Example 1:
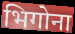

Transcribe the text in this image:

भिगोना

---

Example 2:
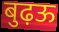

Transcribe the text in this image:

बुढ़ऊ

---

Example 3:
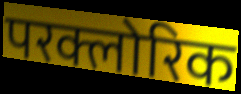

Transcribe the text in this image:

परक्लोरिक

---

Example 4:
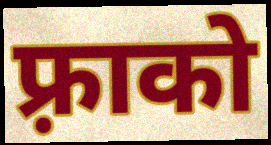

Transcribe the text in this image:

फ़्राको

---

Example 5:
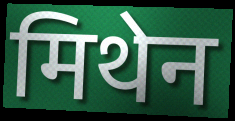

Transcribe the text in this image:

मिथेन